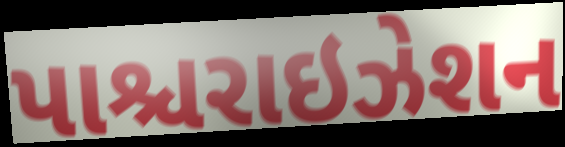
પાશ્ચરાઇઝેશન